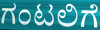
ಗಂಟಲಿಗೆ